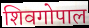
शिवगोपाल